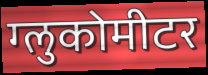
ग्लुकोमीटर